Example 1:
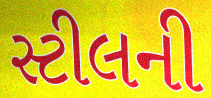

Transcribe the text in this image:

સ્ટીલની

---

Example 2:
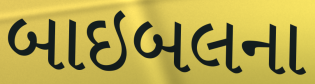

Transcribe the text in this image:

બાઇબલના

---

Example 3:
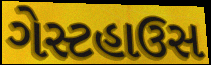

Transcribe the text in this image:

ગેસ્ટહાઉસ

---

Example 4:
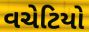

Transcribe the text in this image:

વચેટિયો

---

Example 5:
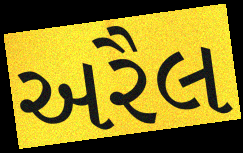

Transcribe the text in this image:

અરૈલ